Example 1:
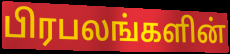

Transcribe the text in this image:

பிரபலங்களின்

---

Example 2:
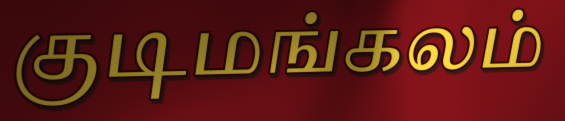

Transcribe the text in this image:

குடிமங்கலம்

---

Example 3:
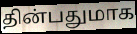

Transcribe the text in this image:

தின்பதுமாக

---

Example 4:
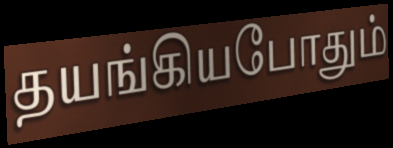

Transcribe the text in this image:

தயங்கியபோதும்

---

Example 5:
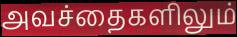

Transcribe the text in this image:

அவச்தைகளிலும்